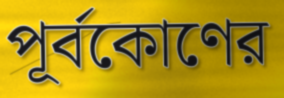
পূর্বকোণের